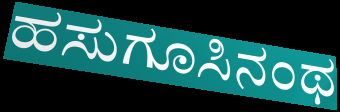
ಹಸುಗೂಸಿನಂಥ